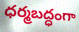
ధర్మబద్ధంగా